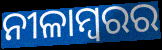
ନୀଳାମ୍ବରର